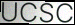
UCSC